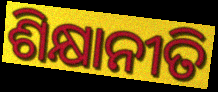
ଶିକ୍ଷାନୀତି